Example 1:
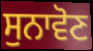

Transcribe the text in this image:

ਸੁਨਾਵੋਣ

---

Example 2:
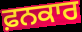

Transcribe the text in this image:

ਫ਼ਨਕਾਰ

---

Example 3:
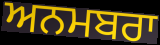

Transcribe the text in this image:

ਅਨਮਬਰਾ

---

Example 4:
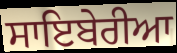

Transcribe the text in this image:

ਸਾਇਬੇਰੀਆ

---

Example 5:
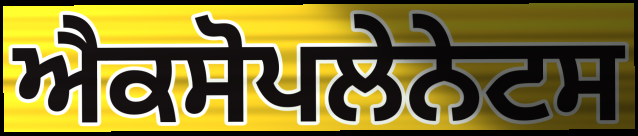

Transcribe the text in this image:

ਐਕਸੋਪਲੇਨੇਟਸ